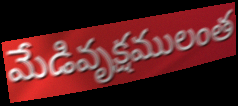
మేడివృక్షములంత